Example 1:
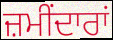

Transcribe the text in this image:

ਜ਼ਮੀਂਦਾਰਾਂ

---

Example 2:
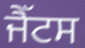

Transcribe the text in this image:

ਜੈੱਟਸ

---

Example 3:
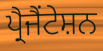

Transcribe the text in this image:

ਪ੍ਰੈਜੈਂਟੇਸ਼ਨ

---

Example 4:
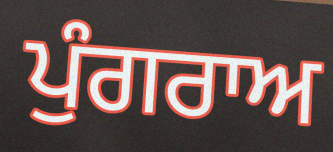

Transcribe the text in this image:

ਪੁੰਗਰਾਅ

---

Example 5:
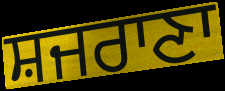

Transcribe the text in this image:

ਸ਼ਜਰਾਣਾ